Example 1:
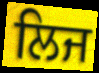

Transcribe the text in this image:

ਲਿਜ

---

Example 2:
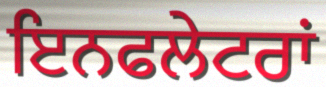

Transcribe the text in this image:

ਇਨਫਲੇਟਰਾਂ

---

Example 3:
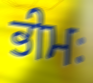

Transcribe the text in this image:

ਭੀਮਃ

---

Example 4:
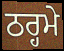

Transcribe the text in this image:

ਠਰ੍ਹਮੇ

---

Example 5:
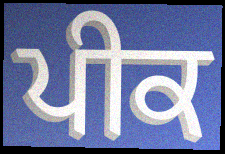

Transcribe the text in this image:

ਪੀਕ